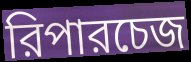
রিপারচেজ